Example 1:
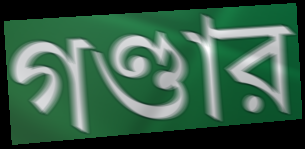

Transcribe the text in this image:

গণ্ডার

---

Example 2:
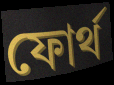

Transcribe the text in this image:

ফোর্থ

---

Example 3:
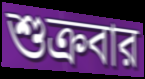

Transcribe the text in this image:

শুক্রবার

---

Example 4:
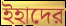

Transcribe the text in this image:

ইহাদের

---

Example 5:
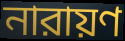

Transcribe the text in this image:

নারায়ণ